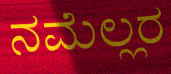
ನಮೆಲ್ಲರ